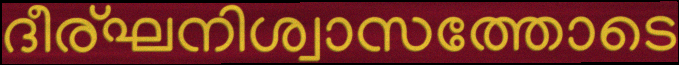
ദീര്ഘനിശ്വാസത്തോടെ